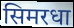
सिमरधा